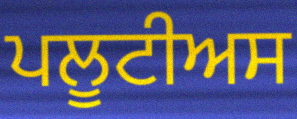
ਪਲੂਟੀਅਸ